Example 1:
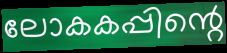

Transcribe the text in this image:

ലോകകപ്പിന്റെ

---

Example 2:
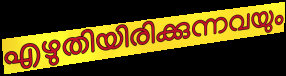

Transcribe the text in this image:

എഴുതിയിരിക്കുന്നവയും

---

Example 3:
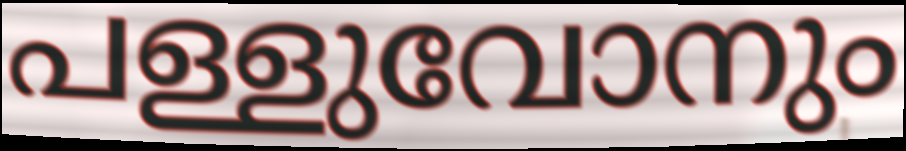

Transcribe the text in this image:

പള്ളുവോനും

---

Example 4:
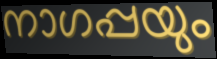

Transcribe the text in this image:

നാഗപ്പയും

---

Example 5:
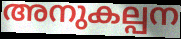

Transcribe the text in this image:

അനുകല്പന